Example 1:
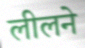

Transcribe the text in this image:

लीलने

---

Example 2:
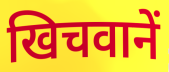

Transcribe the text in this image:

खिचवानें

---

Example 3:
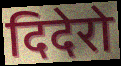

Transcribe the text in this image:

दिदेरो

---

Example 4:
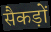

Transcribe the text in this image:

सैकड़ों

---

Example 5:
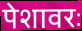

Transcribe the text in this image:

पेशावरः